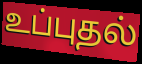
உப்புதல்